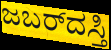
ಜಬರ್‌ದಸ್ತಿ